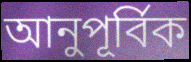
আনুপূর্বিক